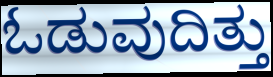
ಓಡುವುದಿತ್ತು